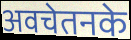
अवचेतनके